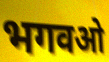
भगवओ